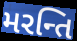
મરન્તિ